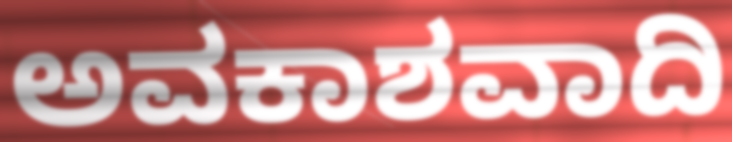
ಅವಕಾಶವಾದಿ